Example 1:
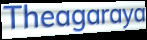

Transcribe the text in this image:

Theagaraya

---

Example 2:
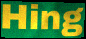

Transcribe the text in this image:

Hing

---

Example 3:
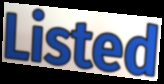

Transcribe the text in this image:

Listed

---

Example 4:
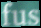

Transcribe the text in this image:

fus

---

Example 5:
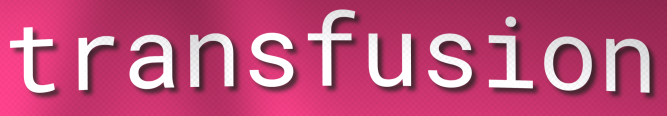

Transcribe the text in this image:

transfusion